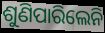
ଶୁଣିପାରିଲେନି